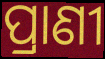
ପ୍ରାଣୀ